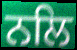
ਨਲਿ